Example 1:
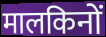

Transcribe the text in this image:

मालकिनों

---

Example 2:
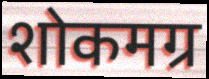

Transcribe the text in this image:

शोकमग्र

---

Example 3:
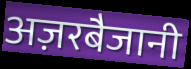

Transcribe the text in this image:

अज़रबैजानी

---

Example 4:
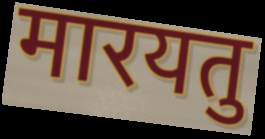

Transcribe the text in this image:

मारयतु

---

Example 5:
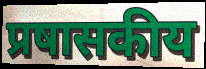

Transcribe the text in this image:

प्रषासकीय